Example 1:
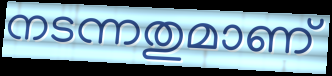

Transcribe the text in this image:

നടന്നതുമാണ്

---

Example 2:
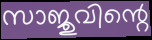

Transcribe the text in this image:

സാജുവിന്റെ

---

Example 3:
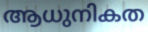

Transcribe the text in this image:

ആധുനികത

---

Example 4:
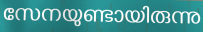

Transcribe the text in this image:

സേനയുണ്ടായിരുന്നു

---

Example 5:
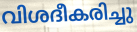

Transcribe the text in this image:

വിശദീകരിച്ചു